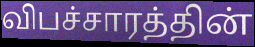
விபச்சாரத்தின்